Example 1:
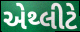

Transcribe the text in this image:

એથ્લીટે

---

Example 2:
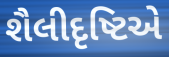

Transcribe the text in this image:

શૈલીદૃષ્ટિએ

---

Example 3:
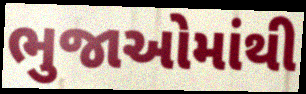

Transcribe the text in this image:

ભુજાઓમાંથી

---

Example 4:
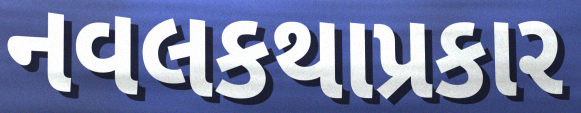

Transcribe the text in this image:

નવલકથાપ્રકાર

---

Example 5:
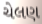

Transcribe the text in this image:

ચેલણ